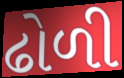
ઢોળી